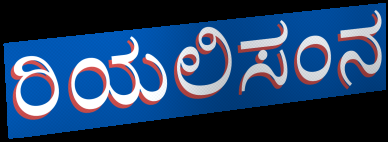
ರಿಯಲಿಸಂನ